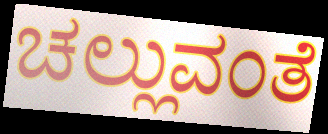
ಚಲ್ಲುವಂತೆ